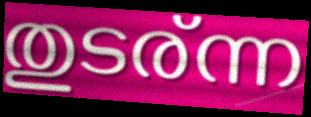
തുടര്ന്ന